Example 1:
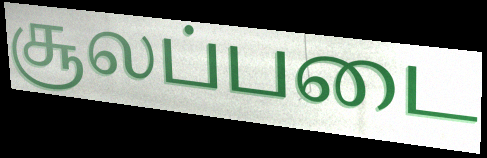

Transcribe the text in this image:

சூலப்படை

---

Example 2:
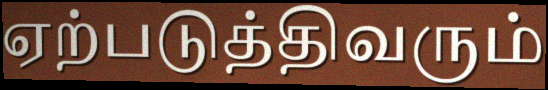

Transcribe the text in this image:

ஏற்படுத்திவரும்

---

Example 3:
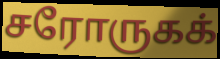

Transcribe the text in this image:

சரோருகக்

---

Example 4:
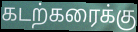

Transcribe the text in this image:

கடற்கரைக்கு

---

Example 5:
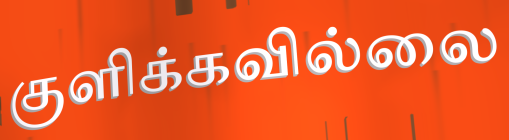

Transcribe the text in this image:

குளிக்கவில்லை